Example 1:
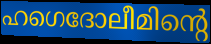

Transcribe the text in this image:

ഹഗെദോലീമിന്റെ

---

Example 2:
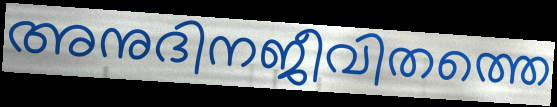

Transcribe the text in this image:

അനുദിനജീവിതത്തെ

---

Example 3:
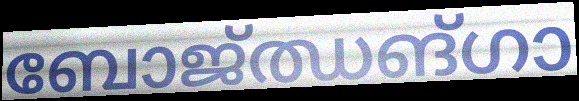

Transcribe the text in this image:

ബോജ്ഝങ്ഗാ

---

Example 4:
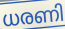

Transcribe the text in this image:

ധരണി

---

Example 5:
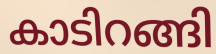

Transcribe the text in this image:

കാടിറങ്ങി